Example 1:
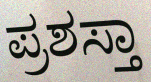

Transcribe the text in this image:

ಪ್ರಶಸ್ತಾ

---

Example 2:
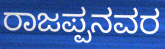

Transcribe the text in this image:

ರಾಜಪ್ಪನವರ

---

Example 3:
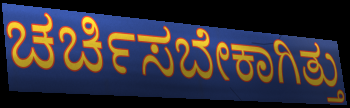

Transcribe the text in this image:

ಚರ್ಚಿಸಬೇಕಾಗಿತ್ತು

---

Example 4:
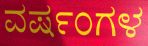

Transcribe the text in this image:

ವರ್ಷಂಗಳ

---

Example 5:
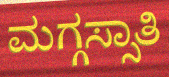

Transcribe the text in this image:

ಮಗ್ಗಸ್ಸಾತಿ